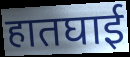
हातघाई